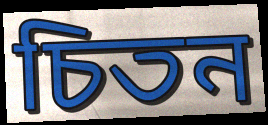
চিতন